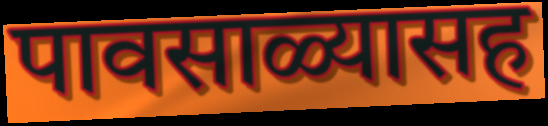
पावसाळ्यासह